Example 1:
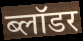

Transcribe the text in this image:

ब्लॉडर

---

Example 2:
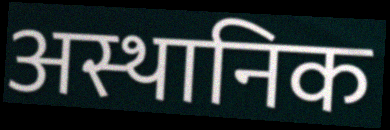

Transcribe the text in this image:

अस्थानिक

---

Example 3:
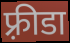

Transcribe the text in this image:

फ़्रीडा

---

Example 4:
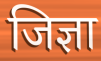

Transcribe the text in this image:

जिज्ञा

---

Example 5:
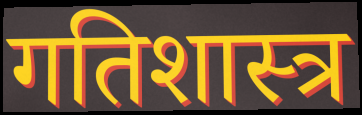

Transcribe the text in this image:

गतिशास्त्र